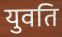
युवति